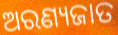
ଅରଣ୍ୟଜାତ